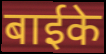
बाईके